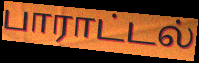
பாராட்டல்